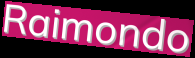
Raimondo